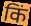
किं